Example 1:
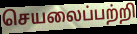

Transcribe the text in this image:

செயலைப்பற்றி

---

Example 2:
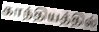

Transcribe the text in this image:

காந்தியத்தில்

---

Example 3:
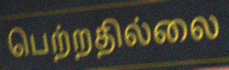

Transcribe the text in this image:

பெற்றதில்லை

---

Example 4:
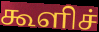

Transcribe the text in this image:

கூளிச்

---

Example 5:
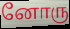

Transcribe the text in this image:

னோரு